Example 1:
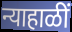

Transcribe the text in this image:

न्याहाळीं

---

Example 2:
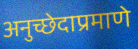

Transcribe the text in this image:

अनुच्छेदाप्रमाणे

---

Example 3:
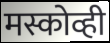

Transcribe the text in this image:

मस्कोव्ही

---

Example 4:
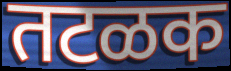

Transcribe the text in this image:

तटळक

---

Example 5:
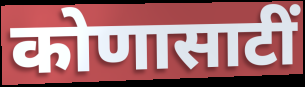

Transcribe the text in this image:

कोणासाटीं